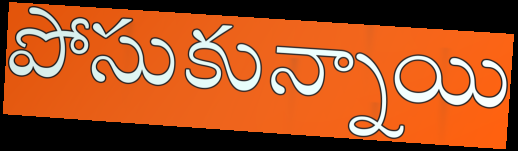
పోసుకున్నాయి